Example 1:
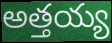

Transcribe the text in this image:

అత్తయ్య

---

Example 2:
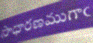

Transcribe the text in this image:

సాధారణముగాఁ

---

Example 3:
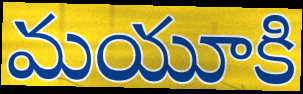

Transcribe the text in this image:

మయూకి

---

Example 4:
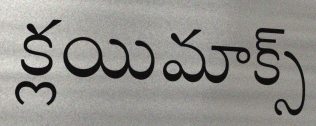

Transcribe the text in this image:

క్లయిమాక్స్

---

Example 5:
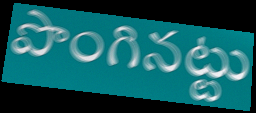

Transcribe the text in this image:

పొంగినట్టు